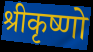
श्रीकृष्णो